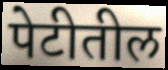
पेटीतील